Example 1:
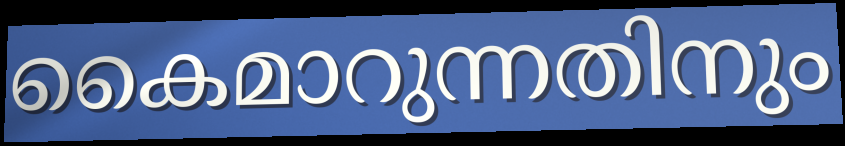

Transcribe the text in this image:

കൈമാറുന്നതിനും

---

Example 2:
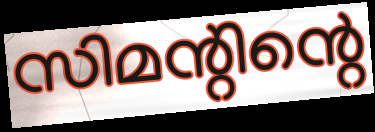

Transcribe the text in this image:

സിമന്റിന്റെ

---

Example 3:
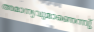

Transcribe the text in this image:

അമാന്യവുമാണെന്നു്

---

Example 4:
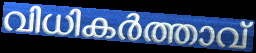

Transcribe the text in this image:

വിധികർത്താവ്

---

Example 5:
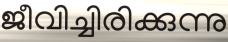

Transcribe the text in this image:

ജീവിച്ചിരിക്കുന്നു